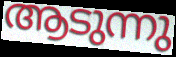
ആടുന്നു